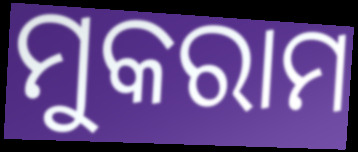
ମୁକରାମ